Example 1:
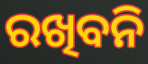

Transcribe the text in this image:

ରଖିବନି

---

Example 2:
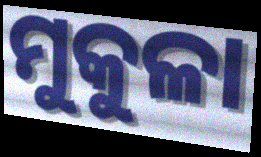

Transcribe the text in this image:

ମୁକୁଳା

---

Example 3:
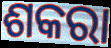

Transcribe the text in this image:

ଶକରା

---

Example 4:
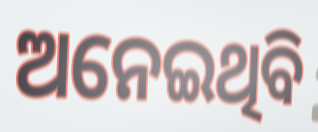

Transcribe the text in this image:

ଅନେଇଥିବି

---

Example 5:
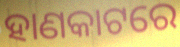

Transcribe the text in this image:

ହାଣକାଟରେ